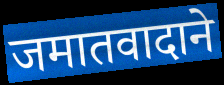
जमातवादाने